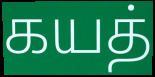
கயத்